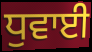
ਧੁਵਾਈ